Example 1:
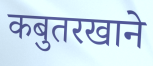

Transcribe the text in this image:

कबुतरखाने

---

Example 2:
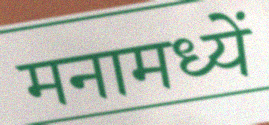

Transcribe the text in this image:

मनामध्यें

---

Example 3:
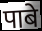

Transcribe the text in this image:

पाबे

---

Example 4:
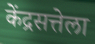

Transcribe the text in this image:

केंद्रसत्तेला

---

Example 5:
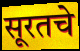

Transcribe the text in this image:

सूरतचे